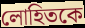
লোহিতকে